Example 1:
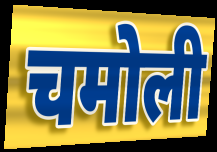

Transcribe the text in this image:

चमोली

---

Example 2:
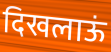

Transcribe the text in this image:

दिखलाऊं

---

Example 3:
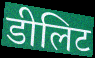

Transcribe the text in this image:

डीलिट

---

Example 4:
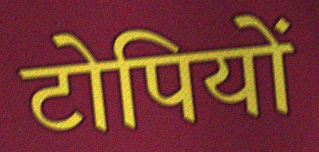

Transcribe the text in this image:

टोपियों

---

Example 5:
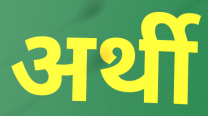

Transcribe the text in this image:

अर्थी